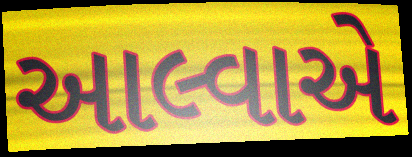
આલ્વાએ